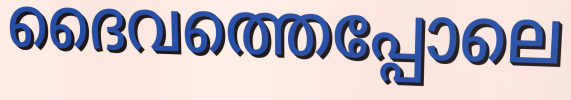
ദൈവത്തെപ്പോലെ